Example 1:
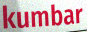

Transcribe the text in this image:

kumbar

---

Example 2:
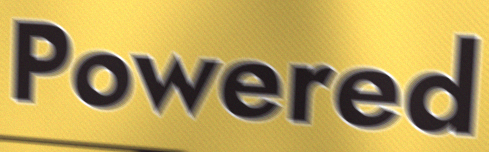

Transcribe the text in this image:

Powered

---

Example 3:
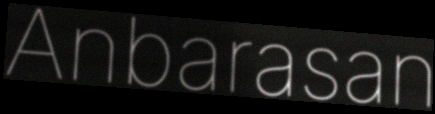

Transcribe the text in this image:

Anbarasan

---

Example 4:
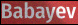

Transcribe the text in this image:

Babayev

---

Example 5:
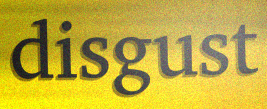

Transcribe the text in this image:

disgust